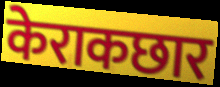
केराकछार